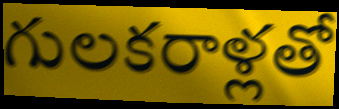
గులకరాళ్లతో